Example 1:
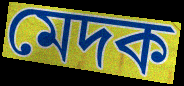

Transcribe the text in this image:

মেদক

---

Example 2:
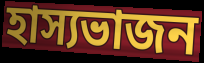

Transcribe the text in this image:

হাস্যভাজন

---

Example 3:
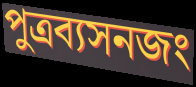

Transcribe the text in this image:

পুত্রব্যসনজং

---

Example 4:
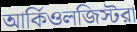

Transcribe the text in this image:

আর্কিওলজিস্টরা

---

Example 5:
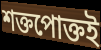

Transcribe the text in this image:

শক্তপোক্তই